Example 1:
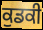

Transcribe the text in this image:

ਕੁਡਕੀ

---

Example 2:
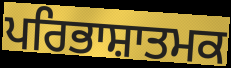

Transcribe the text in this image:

ਪਰਿਭਾਸ਼ਾਤਮਕ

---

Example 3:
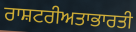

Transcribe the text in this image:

ਰਾਸ਼ਟਰੀਅਤਾਭਾਰਤੀ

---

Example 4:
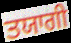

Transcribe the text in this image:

ਤਯਾਗੀ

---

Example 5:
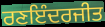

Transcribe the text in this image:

ਰਣਇੰਦਰਜੀਤ